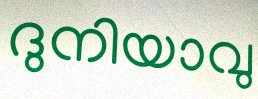
ദുനിയാവു